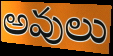
అవులు